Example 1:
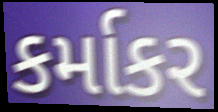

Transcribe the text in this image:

કર્માકર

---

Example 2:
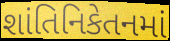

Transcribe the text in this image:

શાંતિનિકેતનમાં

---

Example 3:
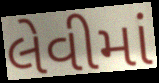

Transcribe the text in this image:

લેવીમાં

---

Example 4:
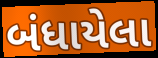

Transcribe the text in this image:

બંધાયેલા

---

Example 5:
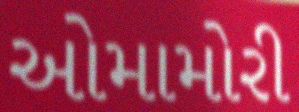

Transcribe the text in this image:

ઓમામોરી